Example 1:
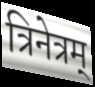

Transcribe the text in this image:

त्रिनेत्रम्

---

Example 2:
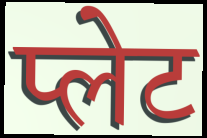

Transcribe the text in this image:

प्लेट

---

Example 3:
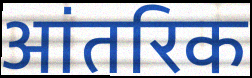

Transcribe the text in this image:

आंतरिक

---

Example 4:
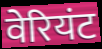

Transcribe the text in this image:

वेरियंट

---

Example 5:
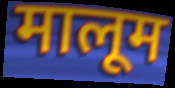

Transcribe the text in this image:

मालूम